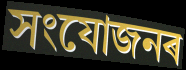
সংযোজনৰ